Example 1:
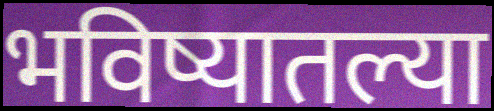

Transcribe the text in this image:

भविष्यातल्या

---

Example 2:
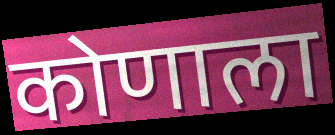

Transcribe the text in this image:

कोणाला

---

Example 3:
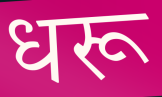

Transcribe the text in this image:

धरू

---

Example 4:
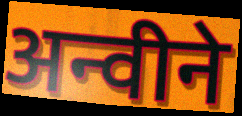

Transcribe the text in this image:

अन्वीने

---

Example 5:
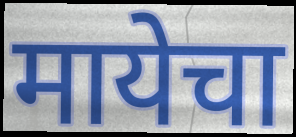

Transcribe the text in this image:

मायेचा